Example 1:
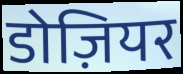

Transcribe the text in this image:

डोज़ियर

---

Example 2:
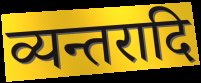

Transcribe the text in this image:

व्यन्तरादि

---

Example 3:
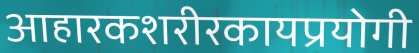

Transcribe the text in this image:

आहारकशरीरकायप्रयोगी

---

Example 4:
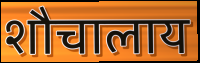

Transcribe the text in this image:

शौचालाय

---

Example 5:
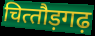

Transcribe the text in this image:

चित्‍तौड़गढ़